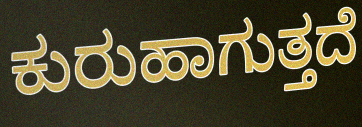
ಕುರುಹಾಗುತ್ತದೆ